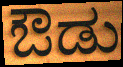
ಔಡು